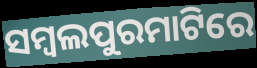
ସମ୍ବଲପୁରମାଟିରେ